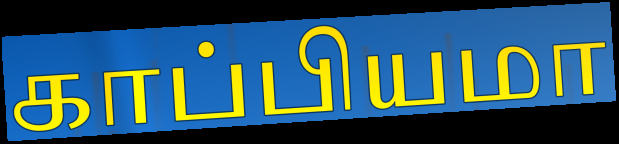
காப்பியமா